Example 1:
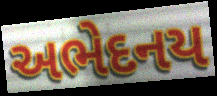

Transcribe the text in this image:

અભેદનય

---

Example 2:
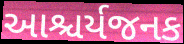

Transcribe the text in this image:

આશ્ચર્યજનક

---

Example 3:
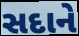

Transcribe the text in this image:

સદાને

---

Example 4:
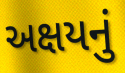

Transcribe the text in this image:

અક્ષયનું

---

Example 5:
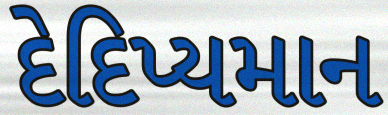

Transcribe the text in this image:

દેદિપ્યમાન